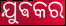
ଯୁଵକର